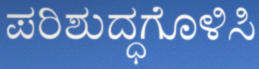
ಪರಿಶುದ್ಧಗೊಳಿಸಿ